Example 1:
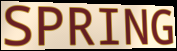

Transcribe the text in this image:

SPRING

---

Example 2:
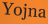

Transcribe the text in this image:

Yojna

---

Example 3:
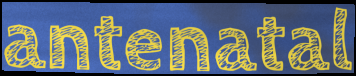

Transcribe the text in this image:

antenatal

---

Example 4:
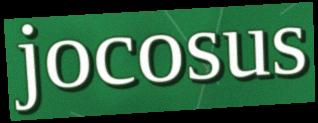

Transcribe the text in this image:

jocosus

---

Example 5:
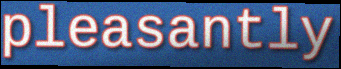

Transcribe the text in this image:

pleasantly